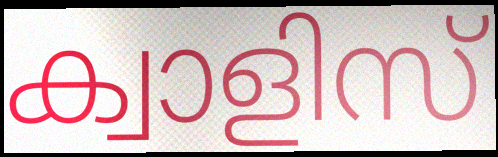
ക്വാളിസ്